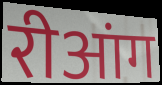
रीआंग